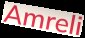
Amreli